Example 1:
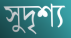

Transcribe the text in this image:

সুদৃশ্য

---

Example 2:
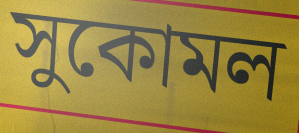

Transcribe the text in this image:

সুকোমল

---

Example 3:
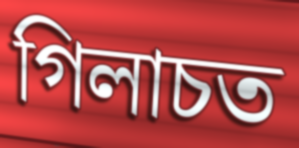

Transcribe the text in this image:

গিলাচত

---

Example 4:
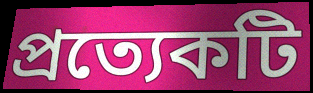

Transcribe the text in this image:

প্ৰত্যেকটি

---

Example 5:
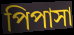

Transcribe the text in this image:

পিপাসা